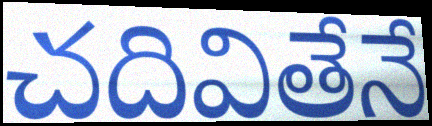
చదివితేనే